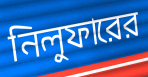
নিলুফারের